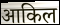
आकिल